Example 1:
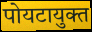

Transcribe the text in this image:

पोयटायुक्त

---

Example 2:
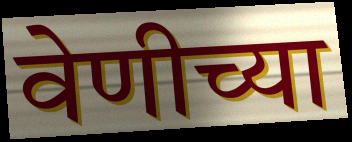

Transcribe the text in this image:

वेणीच्या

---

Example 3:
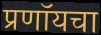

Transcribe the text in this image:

प्रणॉयचा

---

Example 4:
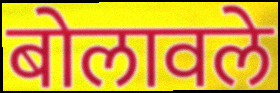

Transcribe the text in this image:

बोलावले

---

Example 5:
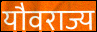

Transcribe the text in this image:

यौवराज्य